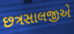
છત્રસાલજીએ